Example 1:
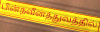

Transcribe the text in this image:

பின்நவீனத்துவத்தில்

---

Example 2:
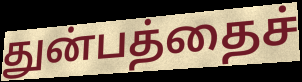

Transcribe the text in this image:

துன்பத்தைச்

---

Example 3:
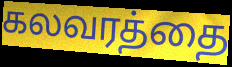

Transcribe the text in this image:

கலவரத்தை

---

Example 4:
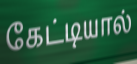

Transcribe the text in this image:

கேட்டியால்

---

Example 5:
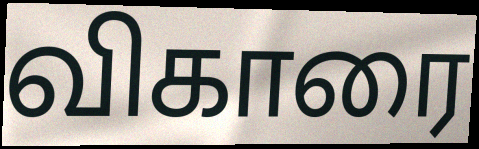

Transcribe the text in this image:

விகாரை